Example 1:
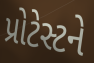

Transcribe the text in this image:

પ્રોટેસ્ટને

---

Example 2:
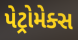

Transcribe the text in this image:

પેટ્રોમેક્સ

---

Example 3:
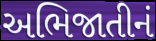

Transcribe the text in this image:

અભિજાતીનં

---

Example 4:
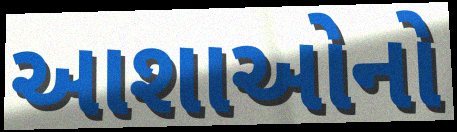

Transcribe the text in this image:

આશાઓનો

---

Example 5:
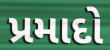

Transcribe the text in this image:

પ્રમાદો